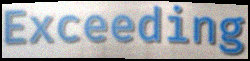
Exceeding